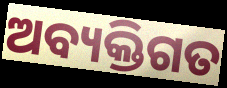
ଅବ୍ୟକ୍ତିଗତ